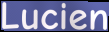
Lucien